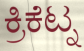
ಕ್ರಿಕೆಟ್ನ